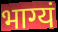
भाग्यं